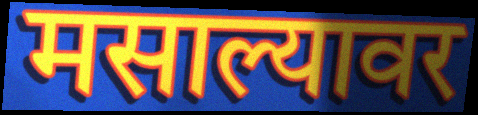
मसाल्यावर